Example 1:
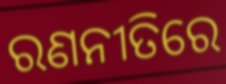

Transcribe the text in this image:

ରଣନୀତିରେ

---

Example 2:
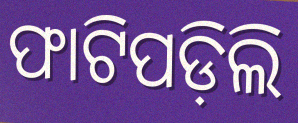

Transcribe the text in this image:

ଫାଟିପଡ଼ିଲି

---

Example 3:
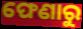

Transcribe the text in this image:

ଫେଣାରୁ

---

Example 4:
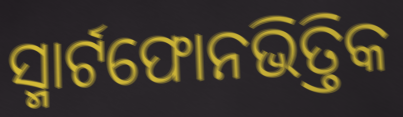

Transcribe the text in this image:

ସ୍ମାର୍ଟଫୋନଭିତ୍ତିକ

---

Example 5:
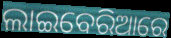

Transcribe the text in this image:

ଲାଇବେରିଆରେ